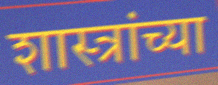
शास्त्रांच्या